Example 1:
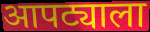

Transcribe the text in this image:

आपट्याला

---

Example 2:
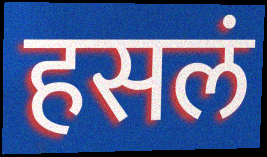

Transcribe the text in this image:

हसलं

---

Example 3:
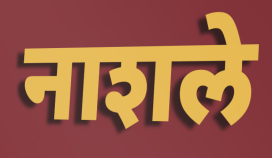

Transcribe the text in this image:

नाशले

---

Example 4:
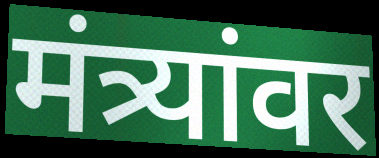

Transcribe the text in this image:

मंत्र्यांवर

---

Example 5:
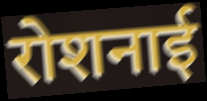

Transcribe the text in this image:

रोशनाई